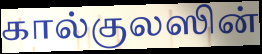
கால்குலஸின்